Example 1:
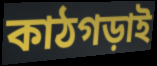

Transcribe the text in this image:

কাঠগড়াই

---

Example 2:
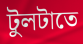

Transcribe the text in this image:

টুলটাতে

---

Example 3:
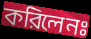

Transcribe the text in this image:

করিলেনঃ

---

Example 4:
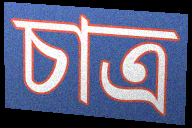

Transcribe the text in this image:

চাত্র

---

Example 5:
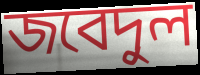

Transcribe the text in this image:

জবেদুল